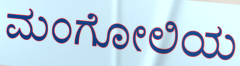
ಮಂಗೋಲಿಯ